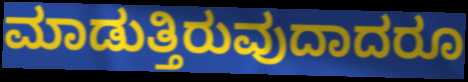
ಮಾಡುತ್ತಿರುವುದಾದರೂ